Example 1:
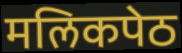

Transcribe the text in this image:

मलिकपेठ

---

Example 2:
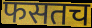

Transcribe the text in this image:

फसतच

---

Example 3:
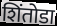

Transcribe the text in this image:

शिंतोडा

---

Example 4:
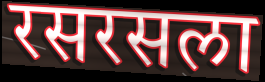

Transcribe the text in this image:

रसरसला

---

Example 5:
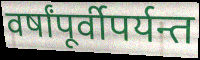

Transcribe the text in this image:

वर्षांपूर्वीपर्यन्त